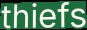
thiefs